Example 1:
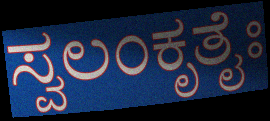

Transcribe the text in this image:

ಸ್ವಲಂಕೃತೈಃ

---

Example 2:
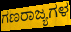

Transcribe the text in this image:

ಗಣರಾಜ್ಯಗಳ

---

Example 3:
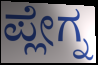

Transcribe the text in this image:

ಪ್ಲೇಗ್ನ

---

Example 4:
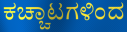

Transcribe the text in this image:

ಕಚ್ಚಾಟಗಳಿಂದ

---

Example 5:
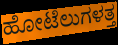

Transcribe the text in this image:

ಹೋಟೆಲುಗಳತ್ತ